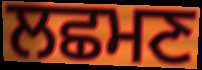
ਲਛਮਣ